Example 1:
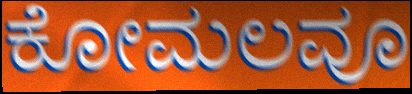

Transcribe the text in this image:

ಕೋಮಲವೂ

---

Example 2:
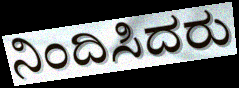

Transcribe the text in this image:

ನಿಂದಿಸಿದರು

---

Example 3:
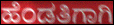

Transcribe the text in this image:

ಹೆಂಡತಿಗಾಗಿ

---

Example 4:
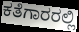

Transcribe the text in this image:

ಕತೆಗಾರರಲ್ಲಿ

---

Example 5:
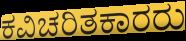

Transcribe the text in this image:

ಕವಿಚರಿತಕಾರರು